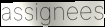
assignees